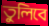
তুলিবে